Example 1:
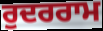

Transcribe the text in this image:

ਰੁਦਰਰਾਮ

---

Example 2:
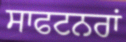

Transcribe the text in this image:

ਸਾਫਟਨਰਾਂ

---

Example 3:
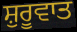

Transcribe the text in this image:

ਸ਼ੁਰੂਵਾਤ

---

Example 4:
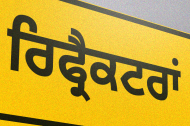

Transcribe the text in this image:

ਰਿਫ੍ਰੈਕਟਰਾਂ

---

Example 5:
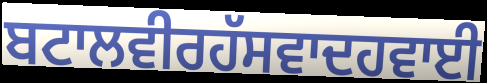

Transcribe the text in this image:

ਬਟਾਲਵੀਰਹੱਸਵਾਦਹਵਾਈ